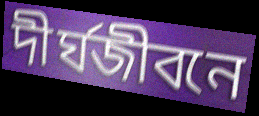
দীর্ঘজীবনে